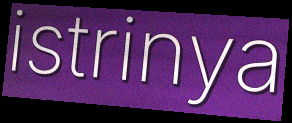
istrinya